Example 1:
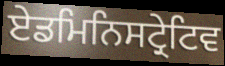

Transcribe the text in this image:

ਏਡਮਿਨਿਸਟ੍ਰੇਟਿਵ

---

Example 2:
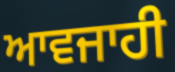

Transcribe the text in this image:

ਆਵਜਾਹੀ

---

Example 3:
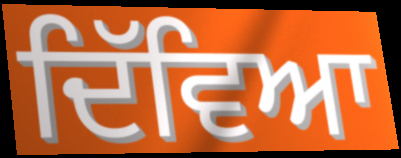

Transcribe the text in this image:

ਦਿੱਵਿਆ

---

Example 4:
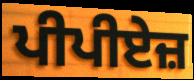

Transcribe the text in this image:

ਪੀਪੀਏਜ਼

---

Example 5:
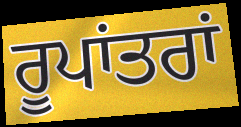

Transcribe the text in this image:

ਰੂਪਾਂਤਰਾਂ